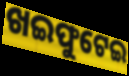
ଖଇଫୁଟେଇ